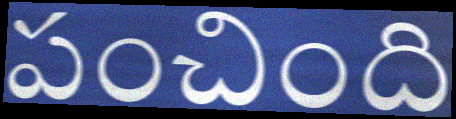
పంచింది